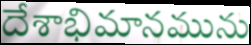
దేశాభిమానమును